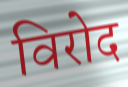
विरोद